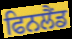
ਫਿਨਲੈਂਡ